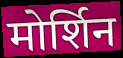
मोर्शिन